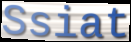
Ssiat